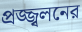
প্রজ্জ্বলনের